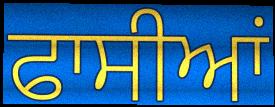
ਫਾਸੀਆਂ